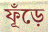
ফূঁড়ে